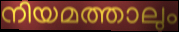
നിയമത്താലും